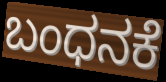
ಬಂಧನಕೆ